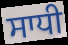
ਸਾਧੀ